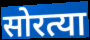
सोरत्या